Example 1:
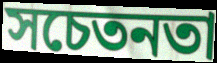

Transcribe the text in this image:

সচেতনতা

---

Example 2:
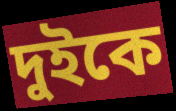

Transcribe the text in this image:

দুইকে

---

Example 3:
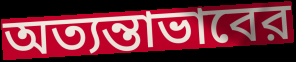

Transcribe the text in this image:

অত্যন্তাভাবের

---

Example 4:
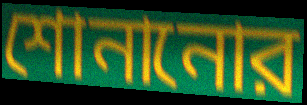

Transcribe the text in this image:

শোনানোর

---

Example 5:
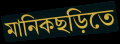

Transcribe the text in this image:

মানিকছড়িতে